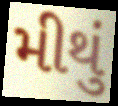
મીથું